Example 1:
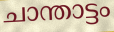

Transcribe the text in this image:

ചാന്താട്ടം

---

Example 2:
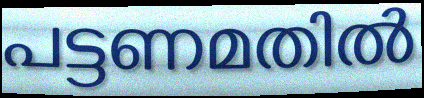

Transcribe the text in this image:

പട്ടണമതിൽ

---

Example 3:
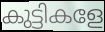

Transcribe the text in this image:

കുട്ടികളേ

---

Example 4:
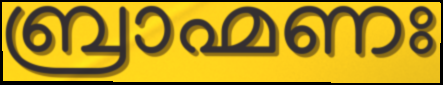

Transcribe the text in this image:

ബ്രാഹ്മണഃ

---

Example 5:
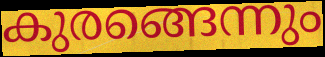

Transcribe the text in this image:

കുരങ്ങെന്നും